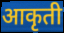
आकृती